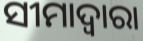
ସୀମାଦ୍ଵାରା